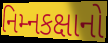
નિમ્નકક્ષાનો